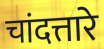
चांदत्तारे